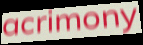
acrimony